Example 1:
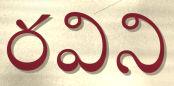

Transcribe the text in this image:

రవిని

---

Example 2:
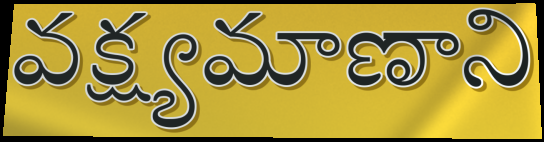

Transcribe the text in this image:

వక్ష్యమాణాని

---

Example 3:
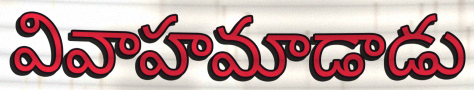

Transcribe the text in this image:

వివాహమాడాడు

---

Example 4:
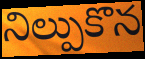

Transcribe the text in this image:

నిల్పుకొన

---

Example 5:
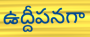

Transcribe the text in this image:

ఉద్దీపనగా